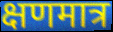
क्षणमात्र